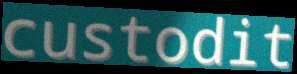
custodit